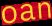
oan